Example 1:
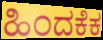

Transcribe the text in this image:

ಹಿಂದಕೆಕ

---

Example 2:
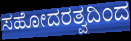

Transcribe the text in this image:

ಸಹೋದರತ್ವದಿಂದ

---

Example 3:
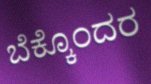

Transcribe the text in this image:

ಬೆಕ್ಕೊಂದರ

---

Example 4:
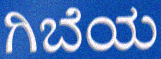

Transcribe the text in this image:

ಗಿಬೆಯ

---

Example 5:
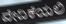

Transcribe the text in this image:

ವೇದಿಕೆಯಲಿ